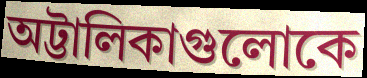
অট্টালিকাগুলোকে